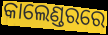
କାଲେଣ୍ଡରରେ